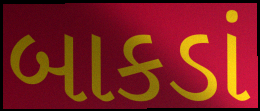
બાકડાં